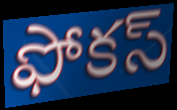
ఫోకస్